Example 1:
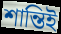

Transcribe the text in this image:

শান্তিই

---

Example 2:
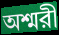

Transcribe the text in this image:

অশ্মরী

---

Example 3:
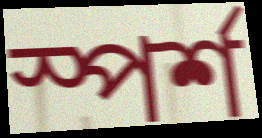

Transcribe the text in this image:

স্পর্শ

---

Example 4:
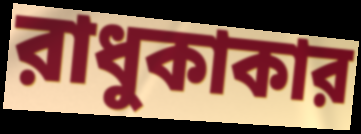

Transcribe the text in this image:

রাধুকাকার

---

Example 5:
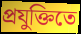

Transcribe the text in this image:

প্রযুক্তিতে